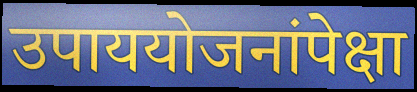
उपाययोजनांपेक्षा